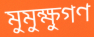
মুমুক্ষুগণ